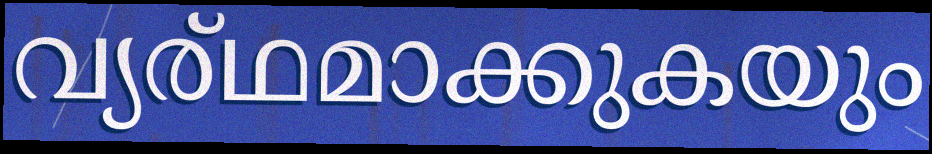
വ്യര്ഥമാക്കുകയും